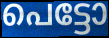
പെട്ടോ